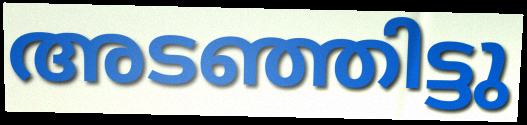
അടഞ്ഞിട്ടു